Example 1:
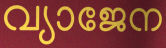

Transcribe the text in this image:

വ്യാജേന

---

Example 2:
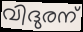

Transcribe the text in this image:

വിദുരന്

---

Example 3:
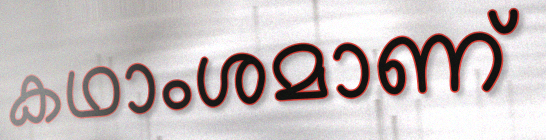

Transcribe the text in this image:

കഥാംശമാണ്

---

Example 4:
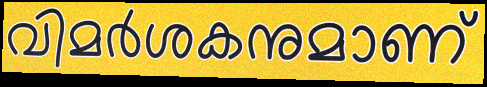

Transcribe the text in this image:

വിമർശകനുമാണ്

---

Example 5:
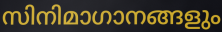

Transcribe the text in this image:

സിനിമാഗാനങ്ങളും